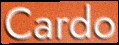
Cardo